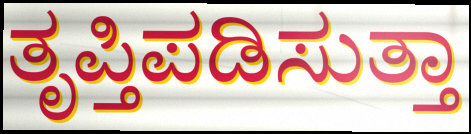
ತೃಪ್ತಿಪಡಿಸುತ್ತಾ